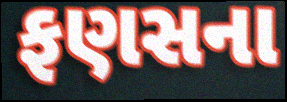
ફણસના